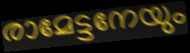
രാമേട്ടനേയും